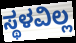
ಸ್ಥಳವಿಲ್ಲ